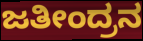
ಜತೀಂದ್ರನ